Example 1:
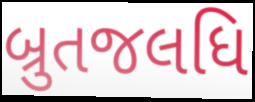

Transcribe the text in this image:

બ્રુતજલધિ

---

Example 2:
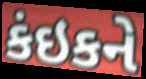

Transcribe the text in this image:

કંઇકને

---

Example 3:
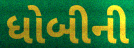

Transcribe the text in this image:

ધોબીની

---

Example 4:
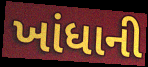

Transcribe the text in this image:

ખાંધાની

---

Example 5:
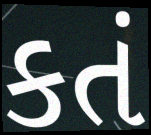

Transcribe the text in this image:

કતં